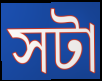
সটা